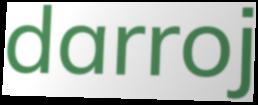
darroj